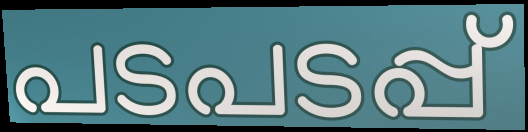
പടപടപ്പ്